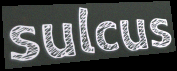
sulcus